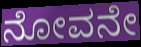
ನೋವನೇ